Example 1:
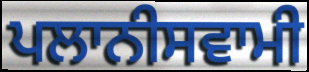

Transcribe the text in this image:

ਪਲਾਨੀਸਵਾਮੀ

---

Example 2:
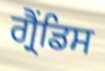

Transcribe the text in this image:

ਗ੍ਰੈਂਡਿਸ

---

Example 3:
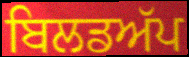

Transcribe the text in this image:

ਬਿਲਡਅੱਪ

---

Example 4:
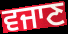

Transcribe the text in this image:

ਵਜਾਣ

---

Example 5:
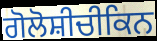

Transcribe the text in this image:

ਗੋਲੋਸ਼ੀਚੀਕਿਨ